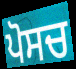
ਪੋਸਚ